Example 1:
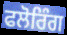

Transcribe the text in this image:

ਫਲੋਰਿੰਗ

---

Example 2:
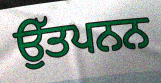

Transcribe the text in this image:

ਉੱਤਪਨਨ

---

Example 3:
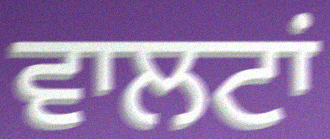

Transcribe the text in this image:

ਵਾਲਟਾਂ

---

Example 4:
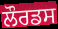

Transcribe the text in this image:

ਲੌਰਡਸ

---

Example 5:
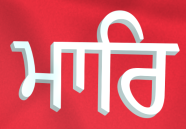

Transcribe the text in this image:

ਮਾਰਿ